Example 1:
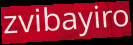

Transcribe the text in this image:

zvibayiro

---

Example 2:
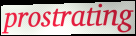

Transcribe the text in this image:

prostrating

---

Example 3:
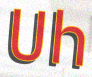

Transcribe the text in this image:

Uh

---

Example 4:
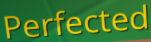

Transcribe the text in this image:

Perfected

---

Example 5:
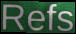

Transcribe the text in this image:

Refs